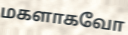
மகளாகவோ